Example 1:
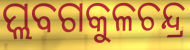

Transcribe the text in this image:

ପ୍ଲବଗକୁଳଚନ୍ଦ୍ର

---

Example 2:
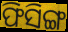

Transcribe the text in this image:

ଫିସିଙ୍ଗ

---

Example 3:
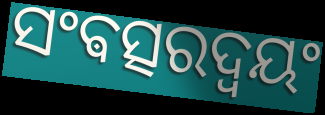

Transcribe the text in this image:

ସଂଵତ୍ସରଦ୍ଵୟଂ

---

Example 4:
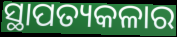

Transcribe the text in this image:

ସ୍ଥାପତ୍ୟକଳାର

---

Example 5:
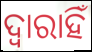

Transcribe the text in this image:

ଦ୍ୱାରାହିଁ